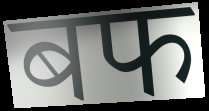
बफ